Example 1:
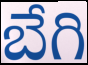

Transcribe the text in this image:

బేగి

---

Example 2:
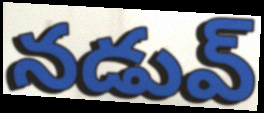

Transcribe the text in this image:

నడువ్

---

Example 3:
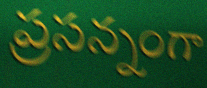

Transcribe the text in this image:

ప్రసన్నంగా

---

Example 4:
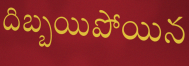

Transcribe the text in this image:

దిబ్బయిపోయిన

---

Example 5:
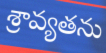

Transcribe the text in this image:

శ్రావ్యతను